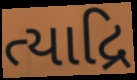
ત્યાદ્રિ